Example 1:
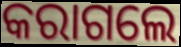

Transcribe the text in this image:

କରାଗଲେ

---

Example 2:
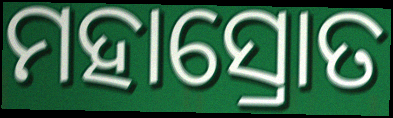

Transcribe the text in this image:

ମହାସ୍ରୋତ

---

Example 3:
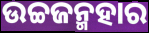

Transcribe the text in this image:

ଉଚ୍ଚଜନ୍ମହାର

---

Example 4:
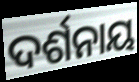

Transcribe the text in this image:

ଦର୍ଶନାୟ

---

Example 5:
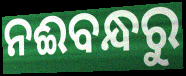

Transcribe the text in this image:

ନଈବନ୍ଧରୁ